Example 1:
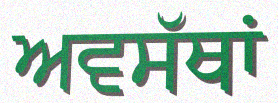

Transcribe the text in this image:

ਅਵਸੱਥਾਂ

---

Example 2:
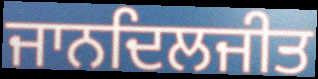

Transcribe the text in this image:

ਜਾਨਦਿਲਜੀਤ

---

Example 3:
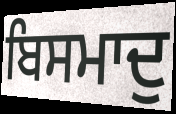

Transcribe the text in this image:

ਬਿਸਮਾਦੁ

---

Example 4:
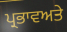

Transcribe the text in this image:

ਪ੍ਰਭਾਵਅਤੇ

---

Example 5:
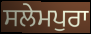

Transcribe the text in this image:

ਸਲੇਮਪੁਰਾ